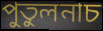
পুতুলনাচ